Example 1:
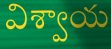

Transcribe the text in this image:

విశ్వాయ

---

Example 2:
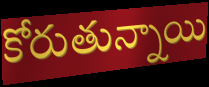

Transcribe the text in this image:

కోరుతున్నాయి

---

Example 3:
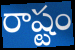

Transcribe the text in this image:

రాష్టం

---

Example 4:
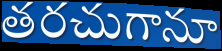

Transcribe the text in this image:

తరచుగానూ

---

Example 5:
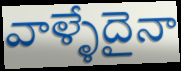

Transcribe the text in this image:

వాళ్ళేదైనా